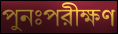
পুনঃপরীক্ষণ